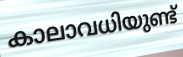
കാലാവധിയുണ്ട്